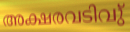
അക്ഷരവടിവു്